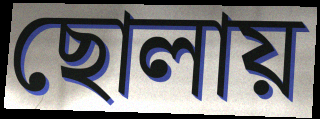
ছোলায়